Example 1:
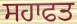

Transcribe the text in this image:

ਸਹਾਫਤ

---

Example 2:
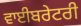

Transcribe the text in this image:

ਵਾਈਬਰੇਟਰੀ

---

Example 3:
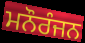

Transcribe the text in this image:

ਮਨੌਰੰਜਨ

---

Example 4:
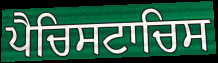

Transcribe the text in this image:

ਪੈਚਿਸਟਾਚਿਸ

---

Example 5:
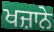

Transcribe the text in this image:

ਖਜ਼ਾਨੇ